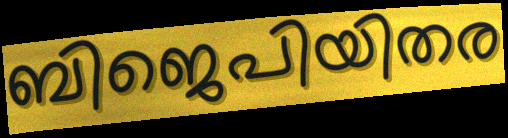
ബിജെപിയിതര